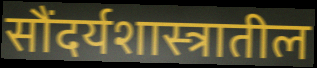
सौंदर्यशास्त्रातील